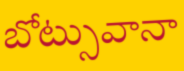
బోట్సువానా